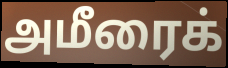
அமீரைக்